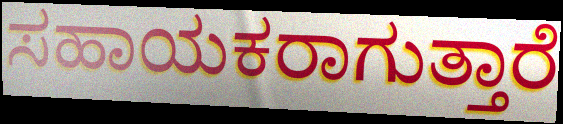
ಸಹಾಯಕರಾಗುತ್ತಾರೆ